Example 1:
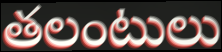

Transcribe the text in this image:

తలంటులు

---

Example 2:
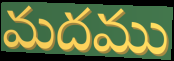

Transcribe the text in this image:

మదము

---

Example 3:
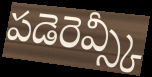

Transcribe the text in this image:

పడెరెవ్స్కీ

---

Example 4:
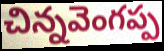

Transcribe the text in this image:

చిన్నవెంగప్ప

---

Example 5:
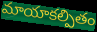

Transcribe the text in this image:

మాయాకల్పితం